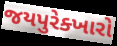
જયપુરેક્ખારો